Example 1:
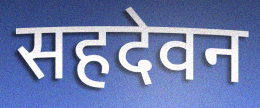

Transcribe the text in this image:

सहदेवन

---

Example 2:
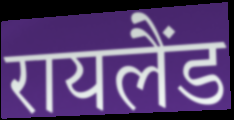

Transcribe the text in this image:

रायलैंड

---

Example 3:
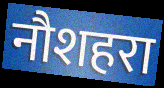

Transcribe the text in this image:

नौशहरा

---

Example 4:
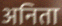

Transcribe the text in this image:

अनिता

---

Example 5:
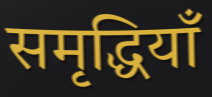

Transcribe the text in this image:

समृद्धियाँ